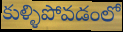
కుళ్ళిపోవడంలో